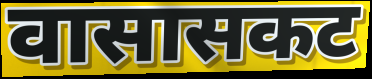
वासासकट